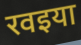
रवइया